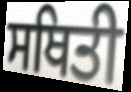
ਸਥਿਤੀ